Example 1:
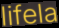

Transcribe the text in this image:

lifela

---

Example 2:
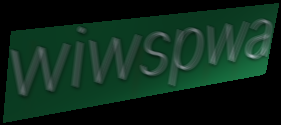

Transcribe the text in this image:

wiwspwa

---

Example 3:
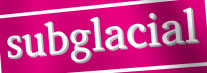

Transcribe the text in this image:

subglacial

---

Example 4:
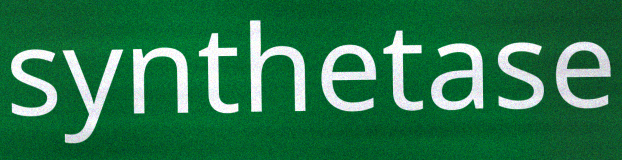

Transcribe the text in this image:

synthetase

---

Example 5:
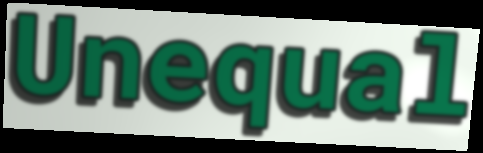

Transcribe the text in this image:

Unequal